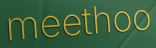
meethoo